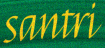
santri